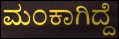
ಮಂಕಾಗಿದ್ದೆ